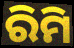
ରିମି